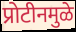
प्रोटीनमुळे